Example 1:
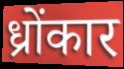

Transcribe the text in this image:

ध्रोंकार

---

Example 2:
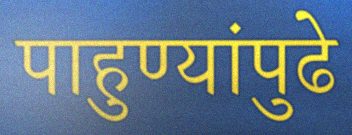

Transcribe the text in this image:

पाहुण्यांपुढे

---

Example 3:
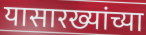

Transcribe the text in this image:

यासारख्यांच्या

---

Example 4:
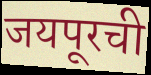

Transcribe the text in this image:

जयपूरची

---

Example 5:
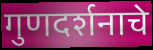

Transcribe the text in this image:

गुणदर्शनाचे